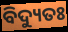
ବିଦ୍ୟୁତଃ